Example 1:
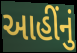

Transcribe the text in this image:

આહીંનું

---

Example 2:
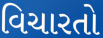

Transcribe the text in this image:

વિચારતો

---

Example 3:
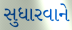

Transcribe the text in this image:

સુધારવાને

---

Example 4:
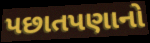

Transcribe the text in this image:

પછાતપણાનો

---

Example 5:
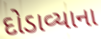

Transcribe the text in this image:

દોડાવ્યાના